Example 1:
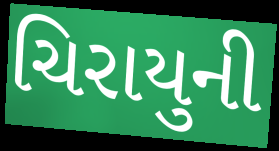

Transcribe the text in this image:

ચિરાયુની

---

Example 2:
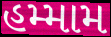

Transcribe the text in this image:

હમ્મામ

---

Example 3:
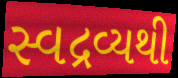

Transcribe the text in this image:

સ્વદ્રવ્યથી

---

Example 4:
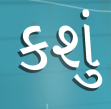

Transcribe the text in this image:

કશું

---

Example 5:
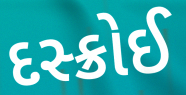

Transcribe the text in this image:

દસ્ક્રોઈ